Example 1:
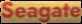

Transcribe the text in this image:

Seagate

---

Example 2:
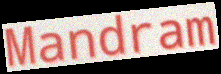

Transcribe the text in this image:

Mandram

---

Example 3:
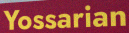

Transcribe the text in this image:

Yossarian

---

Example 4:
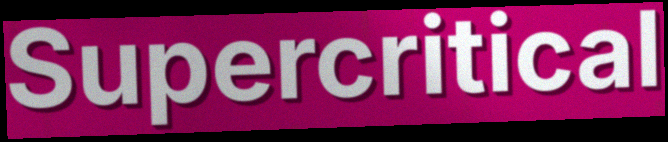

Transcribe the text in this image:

Supercritical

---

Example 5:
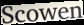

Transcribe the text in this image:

Scowen